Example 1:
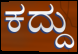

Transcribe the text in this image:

ಕದ್ದು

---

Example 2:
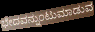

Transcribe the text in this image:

ಭೇದವನ್ನುಂಟುಮಾಡುವ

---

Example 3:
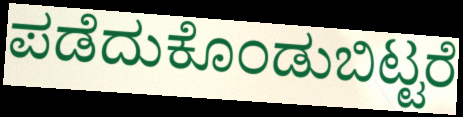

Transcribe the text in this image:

ಪಡೆದುಕೊಂಡುಬಿಟ್ಟರೆ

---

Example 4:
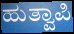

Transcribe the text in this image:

ಹುತ್ವಾಪಿ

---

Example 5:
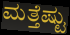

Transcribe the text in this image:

ಮತ್ತೆಷ್ಟು